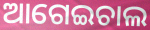
ଆଗେଇଚାଲ